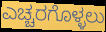
ಎಚ್ಚರಗೊಳ್ಳಲು